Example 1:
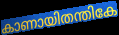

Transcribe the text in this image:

കാണായിതന്തികേ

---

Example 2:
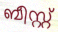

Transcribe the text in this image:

ബീസ്റ്റ്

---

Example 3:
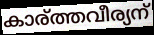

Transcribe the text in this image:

കാര്ത്തവീര്യന്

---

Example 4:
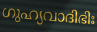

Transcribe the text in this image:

ഗുഹ്യവാദിഭിഃ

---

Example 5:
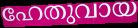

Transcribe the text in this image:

ഹേതുവായ